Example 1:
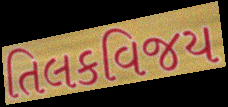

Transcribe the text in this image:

તિલકવિજય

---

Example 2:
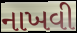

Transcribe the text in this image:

નાખવી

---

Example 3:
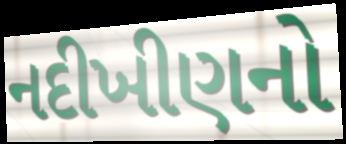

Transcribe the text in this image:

નદીખીણનો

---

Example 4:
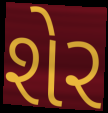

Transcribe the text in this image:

શેર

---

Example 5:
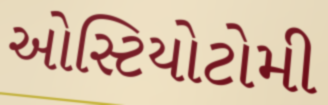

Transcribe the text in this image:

ઓસ્ટિયોટોમી